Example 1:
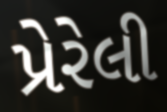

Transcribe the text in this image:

પ્રેરેલી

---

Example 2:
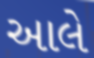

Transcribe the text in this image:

આલે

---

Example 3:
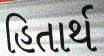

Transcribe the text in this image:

હિતાર્થ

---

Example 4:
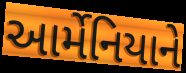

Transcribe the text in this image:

આર્મેનિયાને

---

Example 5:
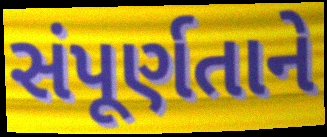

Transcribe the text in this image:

સંપૂર્ણતાને